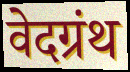
वेदग्रंथ